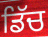
ਡਿੱਚ